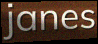
janes